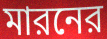
মারনের